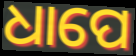
ଧାପେ